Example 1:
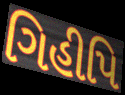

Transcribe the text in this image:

ગિહીપિ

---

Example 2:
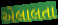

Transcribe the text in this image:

એલાલતા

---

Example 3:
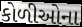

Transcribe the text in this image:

કોળીઓના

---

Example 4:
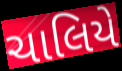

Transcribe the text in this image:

ચાલિયે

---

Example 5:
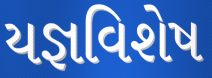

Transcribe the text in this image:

યજ્ઞવિશેષ